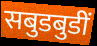
सबुडबुडीं